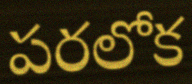
పరలోక